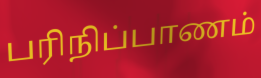
பரிநிப்பாணம்